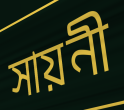
সায়নী